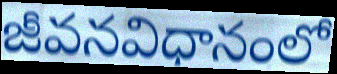
జీవనవిధానంలో